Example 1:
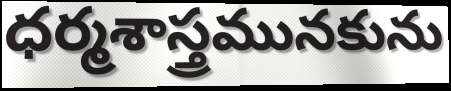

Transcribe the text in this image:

ధర్మశాస్త్రమునకును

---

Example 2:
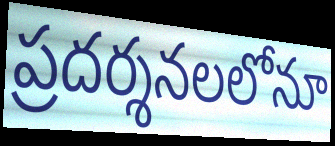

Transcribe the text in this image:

ప్రదర్శనలలోనూ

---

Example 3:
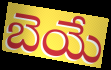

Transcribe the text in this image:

బెయే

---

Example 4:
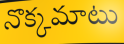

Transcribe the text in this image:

నొక్కమాటు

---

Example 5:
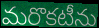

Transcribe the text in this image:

మరొకటీను